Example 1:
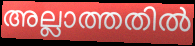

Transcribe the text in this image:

അല്ലാത്തതിൽ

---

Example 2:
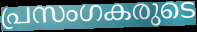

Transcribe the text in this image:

പ്രസംഗകരുടെ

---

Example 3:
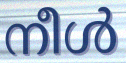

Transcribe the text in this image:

നീൾ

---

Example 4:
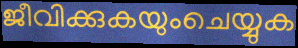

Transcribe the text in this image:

ജീവിക്കുകയുംചെയ്യുക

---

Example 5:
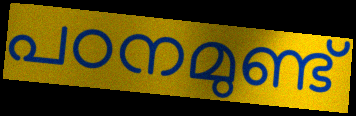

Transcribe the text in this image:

പഠനമുണ്ട്